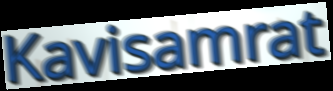
Kavisamrat